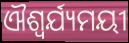
ଐଶ୍ୱର୍ଯ୍ୟମୟୀ